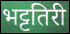
भट्टतिरी